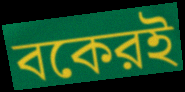
বকেরই